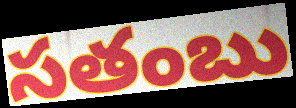
సతంబు